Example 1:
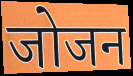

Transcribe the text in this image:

जोजन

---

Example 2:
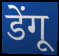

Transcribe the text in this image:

डेंगू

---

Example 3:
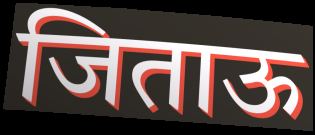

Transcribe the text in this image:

जिताऊ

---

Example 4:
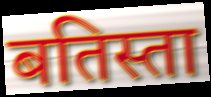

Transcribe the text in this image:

बतिस्ता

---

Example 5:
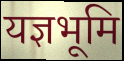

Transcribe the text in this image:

यज्ञभूमि